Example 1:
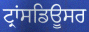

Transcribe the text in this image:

ਟ੍ਰਾਂਸਡਿਊਸਰ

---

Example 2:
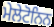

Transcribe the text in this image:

ਮੇਲੇਟੋਨਿਨ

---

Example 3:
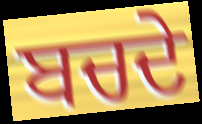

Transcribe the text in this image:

ਬਚਦੇ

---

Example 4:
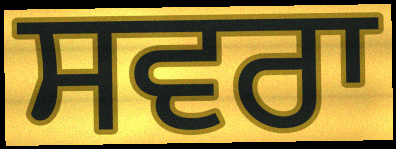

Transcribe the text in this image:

ਸਵਰਾ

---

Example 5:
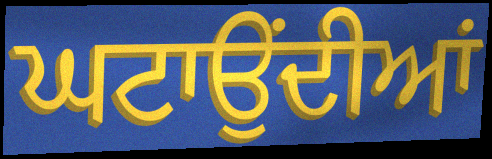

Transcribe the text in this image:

ਘਟਾਉਂਦੀਆਂ